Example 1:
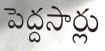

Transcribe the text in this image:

పెద్దసార్లు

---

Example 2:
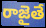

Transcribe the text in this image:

రాజైతే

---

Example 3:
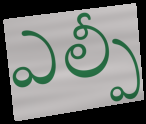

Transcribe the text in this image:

ఎల్పీ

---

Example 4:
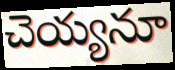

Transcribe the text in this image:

చెయ్యనూ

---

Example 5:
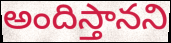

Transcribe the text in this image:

అందిస్తానని